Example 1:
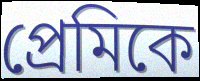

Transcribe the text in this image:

প্ৰেমিকে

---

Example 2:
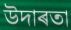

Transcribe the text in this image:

উদাৰতা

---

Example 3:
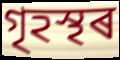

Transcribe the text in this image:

গৃহস্থৰ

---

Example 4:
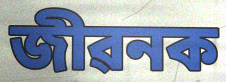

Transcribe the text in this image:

জীৱনক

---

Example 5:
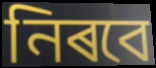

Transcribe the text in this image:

নিৰবে